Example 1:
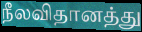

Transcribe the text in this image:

நீலவிதானத்து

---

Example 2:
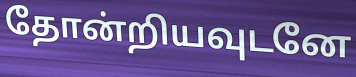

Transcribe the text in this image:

தோன்றியவுடனே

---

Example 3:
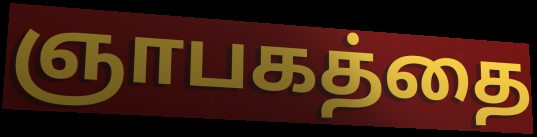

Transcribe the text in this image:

ஞாபகத்தை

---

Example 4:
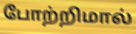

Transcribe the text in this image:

போற்றிமால்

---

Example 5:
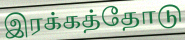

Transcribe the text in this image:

இரக்கத்தோடு